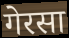
गेरसा